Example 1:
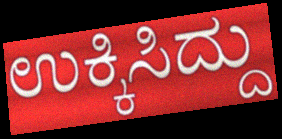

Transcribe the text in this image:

ಉಕ್ಕಿಸಿದ್ದು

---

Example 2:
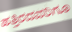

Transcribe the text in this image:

ಹತ್ತಿರದವರಿಗೂ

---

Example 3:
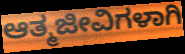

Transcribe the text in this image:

ಆತ್ಮಜೀವಿಗಳಾಗಿ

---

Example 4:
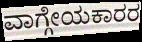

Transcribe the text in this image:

ವಾಗ್ಗೇಯಕಾರರ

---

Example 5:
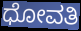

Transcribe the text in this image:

ಧೋವತಿ